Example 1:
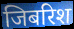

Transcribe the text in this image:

जिबरिश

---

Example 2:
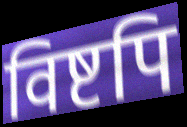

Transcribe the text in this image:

विष्टपि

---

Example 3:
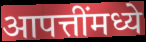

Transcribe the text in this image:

आपत्तींमध्ये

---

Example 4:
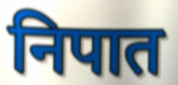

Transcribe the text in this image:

निपात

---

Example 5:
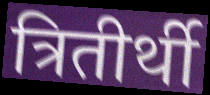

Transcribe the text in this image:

त्रितीर्थी